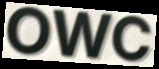
OWC